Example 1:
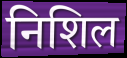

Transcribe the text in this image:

निशिल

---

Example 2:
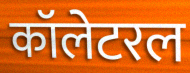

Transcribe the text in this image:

कॉलेटरल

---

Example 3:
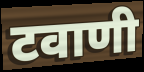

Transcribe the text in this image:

टवाणी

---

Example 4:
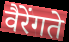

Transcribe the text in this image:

वैरेंगते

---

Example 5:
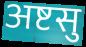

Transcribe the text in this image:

अष्टसु